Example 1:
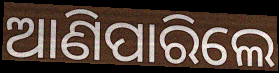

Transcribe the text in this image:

ଆଣିପାରିଲେ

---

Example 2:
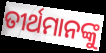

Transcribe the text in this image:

ତୀର୍ଥମାନଙ୍କୁ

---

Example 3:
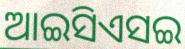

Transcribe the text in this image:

ଆଇସିଏସଇ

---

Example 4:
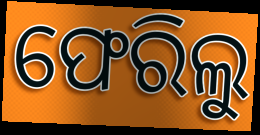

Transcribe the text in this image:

ଫେରିଲୁ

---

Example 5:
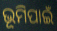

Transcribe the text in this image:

ଭୂମିପାଇଁ